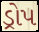
ડ્રોપ